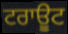
ਟਰਾਊਟ